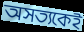
অসত্যকেই